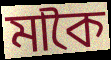
মাকৈ